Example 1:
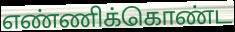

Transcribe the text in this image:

எண்ணிக்கொண்ட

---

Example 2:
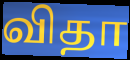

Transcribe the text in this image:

விதா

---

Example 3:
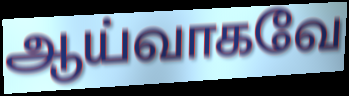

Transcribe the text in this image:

ஆய்வாகவே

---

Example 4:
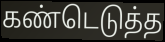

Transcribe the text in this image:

கண்டெடுத்த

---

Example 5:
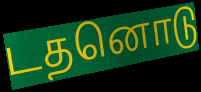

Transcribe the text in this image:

டதனொடு